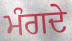
ਮੰਗਦੇ